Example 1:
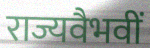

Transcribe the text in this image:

राज्यवैभवीं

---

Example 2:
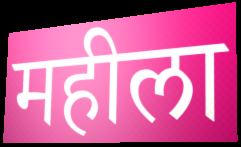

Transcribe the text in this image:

महीला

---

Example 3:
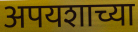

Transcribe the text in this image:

अपयशाच्या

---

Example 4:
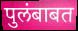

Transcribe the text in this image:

पुलंबाबत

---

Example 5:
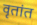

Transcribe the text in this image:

वृतांत